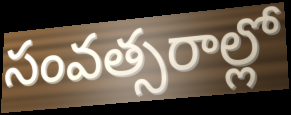
సంవత్సరాల్లో